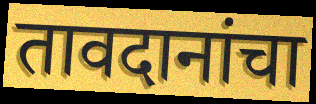
तावदानांचा